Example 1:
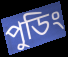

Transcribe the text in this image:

পুডিং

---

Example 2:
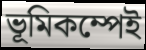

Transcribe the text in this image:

ভূমিকম্পেই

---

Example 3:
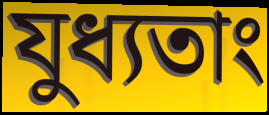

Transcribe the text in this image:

যুধ্যতাং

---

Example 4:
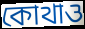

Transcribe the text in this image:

কোথাও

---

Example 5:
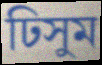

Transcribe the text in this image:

ঢিসুম